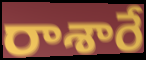
రాశారే